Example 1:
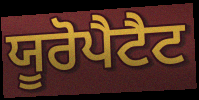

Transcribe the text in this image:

ਯੂਰੋਪੈਟੈਟ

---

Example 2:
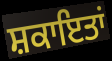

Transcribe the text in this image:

ਸ਼ਕਾਇਤਾਂ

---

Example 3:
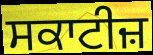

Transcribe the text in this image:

ਸਕਾਟੀਜ਼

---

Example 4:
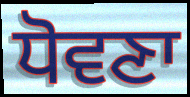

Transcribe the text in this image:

ਧੋਵਣਾ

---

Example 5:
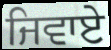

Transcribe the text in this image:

ਜਿਵਾਏ